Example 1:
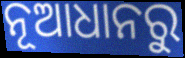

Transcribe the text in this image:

ନୂଆଧାନରୁ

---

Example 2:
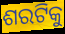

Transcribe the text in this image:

ଶରଟିକୁ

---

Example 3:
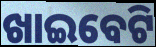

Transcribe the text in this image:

ଖାଇବେଟି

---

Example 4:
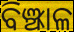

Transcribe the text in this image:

ବିଞ୍ଝାଳ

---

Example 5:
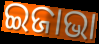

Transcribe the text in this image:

ଇଜାଭା